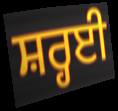
ਸ਼ਰ੍ਹਈ